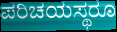
ಪರಿಚಯಸ್ಥರೂ